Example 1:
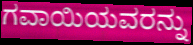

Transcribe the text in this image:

ಗವಾಯಿಯವರನ್ನು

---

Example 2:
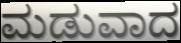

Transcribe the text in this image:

ಮಡುವಾದ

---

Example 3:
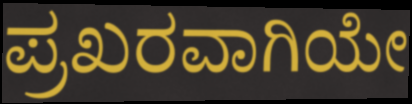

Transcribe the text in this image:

ಪ್ರಖರವಾಗಿಯೇ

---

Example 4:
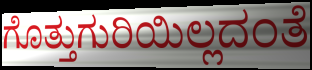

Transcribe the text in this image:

ಗೊತ್ತುಗುರಿಯಿಲ್ಲದಂತೆ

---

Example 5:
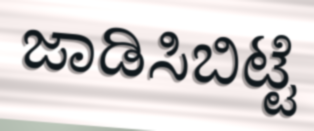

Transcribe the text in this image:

ಜಾಡಿಸಿಬಿಟ್ಟೆ